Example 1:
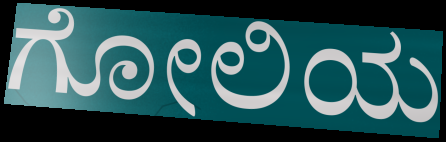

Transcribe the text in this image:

ಗೋಲಿಯ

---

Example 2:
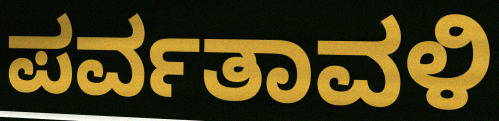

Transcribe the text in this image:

ಪರ್ವತಾವಳಿ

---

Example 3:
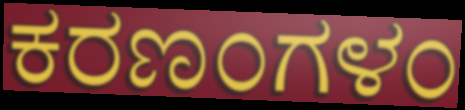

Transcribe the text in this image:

ಕರಣಂಗಳಂ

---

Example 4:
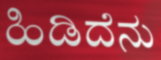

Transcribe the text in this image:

ಹಿಡಿದೆನು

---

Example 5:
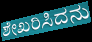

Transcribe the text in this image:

ಶೇಖರಿಸಿದನು